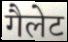
गैलेट